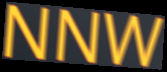
NNW